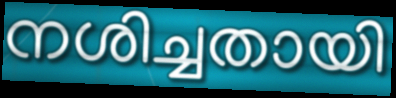
നശിച്ചതായി